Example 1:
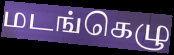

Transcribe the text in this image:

மடங்கெழு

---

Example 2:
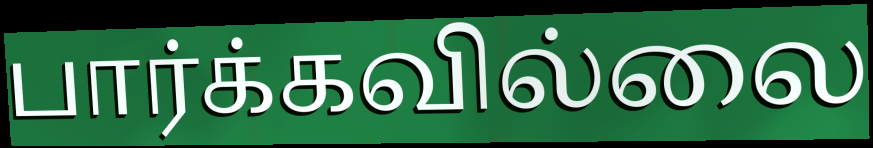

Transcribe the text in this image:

பார்க்கவில்லை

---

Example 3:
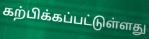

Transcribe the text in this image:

கற்பிக்கப்பட்டுள்ளது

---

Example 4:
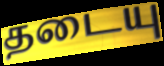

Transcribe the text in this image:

தடையு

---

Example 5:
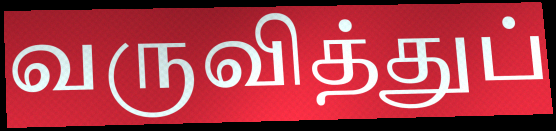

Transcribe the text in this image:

வருவித்துப்